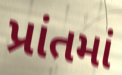
પ્રાંતમાં